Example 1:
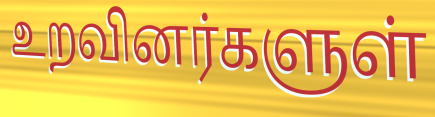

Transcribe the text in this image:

உறவினர்களுள்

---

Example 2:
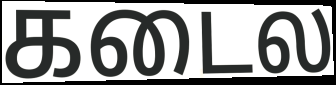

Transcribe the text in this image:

கடைல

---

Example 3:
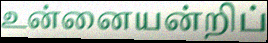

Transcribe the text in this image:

உன்னையன்றிப்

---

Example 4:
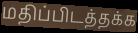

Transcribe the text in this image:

மதிப்பிடத்தக்க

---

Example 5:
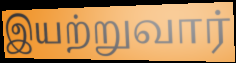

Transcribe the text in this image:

இயற்றுவார்